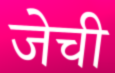
जेची